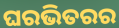
ଘରଭିତରର